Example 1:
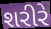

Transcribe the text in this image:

શરીરે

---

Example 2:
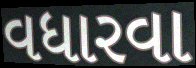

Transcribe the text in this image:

વધારવા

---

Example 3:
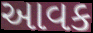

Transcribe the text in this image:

આવક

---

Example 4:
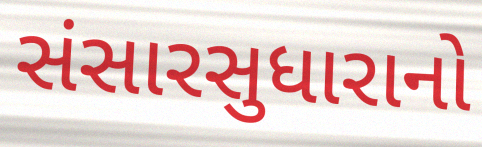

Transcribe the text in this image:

સંસારસુધારાનો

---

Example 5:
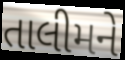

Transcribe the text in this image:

તાલીમને